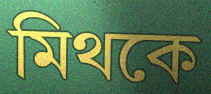
মিথকে